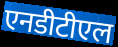
एनडीटीएल